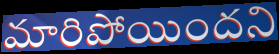
మారిపోయిందని